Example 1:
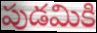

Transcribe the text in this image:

పుడమికి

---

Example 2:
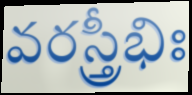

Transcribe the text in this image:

వరస్త్రీభిః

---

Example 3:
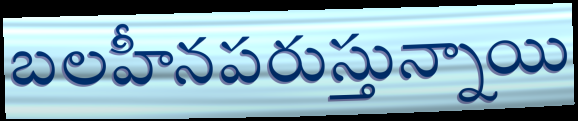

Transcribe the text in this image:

బలహీనపరుస్తున్నాయి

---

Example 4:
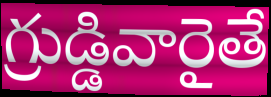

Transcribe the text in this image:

గ్రుడ్డివారైతే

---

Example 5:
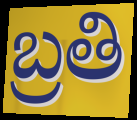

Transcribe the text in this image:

బ్రతి